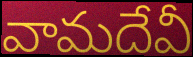
వామదేవీ